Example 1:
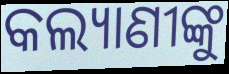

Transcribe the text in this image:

କଲ୍ୟାଣୀଙ୍କୁ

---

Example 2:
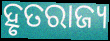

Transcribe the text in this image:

ହୃତରାଜ୍ୟ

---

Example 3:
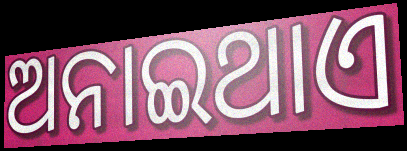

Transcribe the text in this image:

ଅନାଇଥାଏ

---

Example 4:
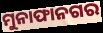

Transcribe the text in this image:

ମୁନାଫାନଗର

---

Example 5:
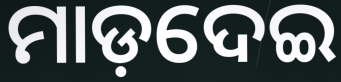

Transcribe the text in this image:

ମାଡ଼ଦେଇ